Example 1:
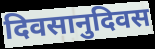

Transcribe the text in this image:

दिवसानुदिवस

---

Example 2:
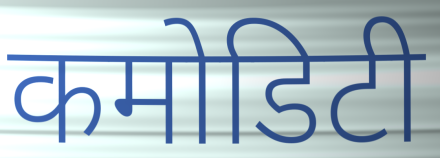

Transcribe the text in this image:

कमोडिटी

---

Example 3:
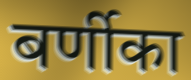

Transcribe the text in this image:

बर्णीका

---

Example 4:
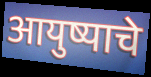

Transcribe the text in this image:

आयुष्याचे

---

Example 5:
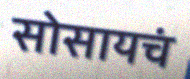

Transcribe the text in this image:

सोसायचं